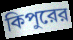
কিপুরের